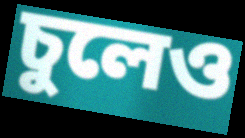
চুলেও